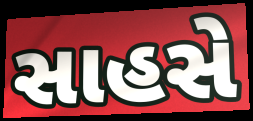
સાહસે